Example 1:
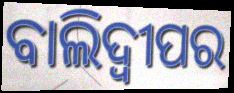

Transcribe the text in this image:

ବାଲିଦ୍ୱୀପର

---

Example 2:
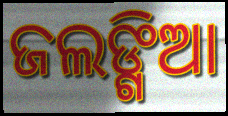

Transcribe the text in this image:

ଜଲଙ୍ଗିଆ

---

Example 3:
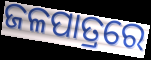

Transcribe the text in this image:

ଜଳପାତ୍ରରେ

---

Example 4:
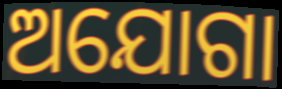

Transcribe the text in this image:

ଅଯୋଗା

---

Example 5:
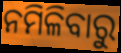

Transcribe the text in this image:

ନମିଳିବାରୁ